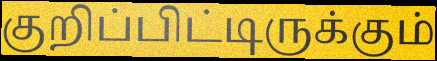
குறிப்பிட்டிருக்கும்